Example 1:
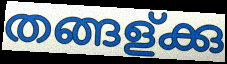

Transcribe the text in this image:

തങ്ങള്ക്കു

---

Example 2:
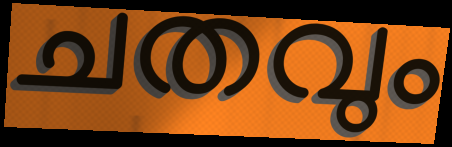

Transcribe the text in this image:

ചതവും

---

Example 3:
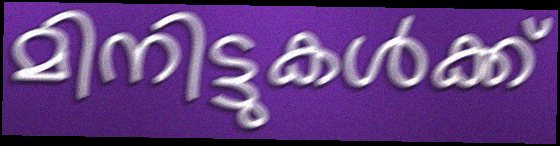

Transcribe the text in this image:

മിനിട്ടുകൾക്ക്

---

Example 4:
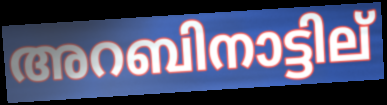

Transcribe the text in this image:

അറബിനാട്ടില്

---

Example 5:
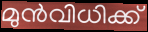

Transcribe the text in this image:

മുൻവിധിക്ക്